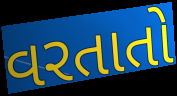
વરતાતો